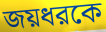
জয়ধরকে